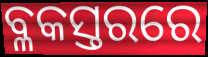
ବ୍ଳକସ୍ତରରେ